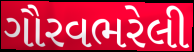
ગૌરવભરેલી